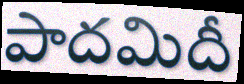
పాదమిదీ